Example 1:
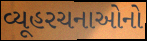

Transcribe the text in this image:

વ્યૂહરચનાઓનો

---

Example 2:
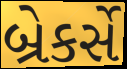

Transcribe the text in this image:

બ્રેકર્સે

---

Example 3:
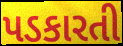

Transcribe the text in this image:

પડકારતી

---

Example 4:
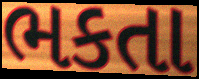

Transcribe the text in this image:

ભકતા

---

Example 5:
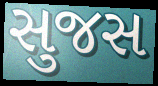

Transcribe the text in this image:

સુજસ